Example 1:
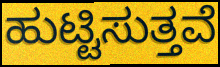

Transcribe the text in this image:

ಹುಟ್ಟಿಸುತ್ತವೆ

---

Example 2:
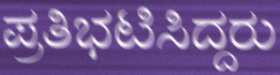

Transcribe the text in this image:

ಪ್ರತಿಭಟಿಸಿದ್ದರು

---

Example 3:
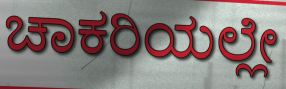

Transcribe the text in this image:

ಚಾಕರಿಯಲ್ಲೇ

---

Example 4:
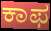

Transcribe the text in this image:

ಕಾಫ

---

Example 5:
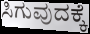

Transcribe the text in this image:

ಸಿಗುವುದಕ್ಕೆ